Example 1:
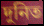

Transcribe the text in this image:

দুনিত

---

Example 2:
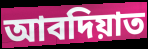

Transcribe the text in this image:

আবদিয়াত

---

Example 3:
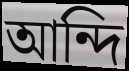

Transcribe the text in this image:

আন্দি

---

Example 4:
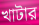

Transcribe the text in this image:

খাটার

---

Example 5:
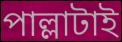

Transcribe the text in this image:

পাল্লাটাই